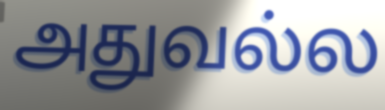
அதுவல்ல